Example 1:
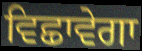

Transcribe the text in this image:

ਵਿਛਾਵੇਗਾ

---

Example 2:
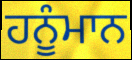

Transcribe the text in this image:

ਹਨੂੰਮਾਨ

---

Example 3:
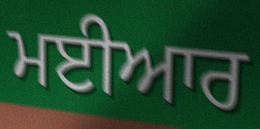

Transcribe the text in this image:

ਮਈਆਰ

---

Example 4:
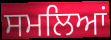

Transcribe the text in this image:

ਸਮਲਿਆਂ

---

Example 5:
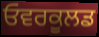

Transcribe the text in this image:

ਓਵਰਕੂਲਡ